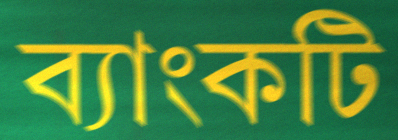
ব্যাংকটি